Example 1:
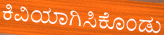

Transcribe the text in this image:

ಕಿವಿಯಾಗಿಸಿಕೊಂಡು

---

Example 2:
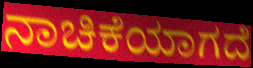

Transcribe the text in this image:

ನಾಚಿಕೆಯಾಗದೆ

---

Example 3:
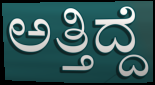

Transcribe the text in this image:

ಅತ್ತಿದ್ದೆ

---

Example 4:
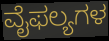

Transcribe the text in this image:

ವೈಫಲ್ಯಗಳ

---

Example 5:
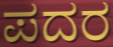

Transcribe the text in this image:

ಪದರ